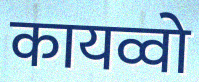
कायव्वो